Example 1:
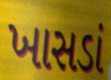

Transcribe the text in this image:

ખાસડાં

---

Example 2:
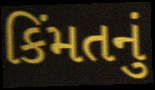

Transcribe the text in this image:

કિંમતનું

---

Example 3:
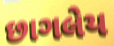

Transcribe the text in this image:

છાગલેય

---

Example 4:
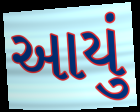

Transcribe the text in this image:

આયું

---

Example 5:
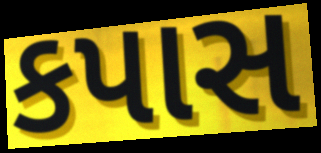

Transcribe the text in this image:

કપાસ